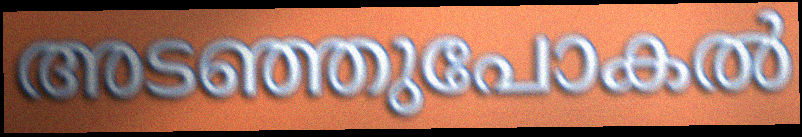
അടഞ്ഞുപോകൽ